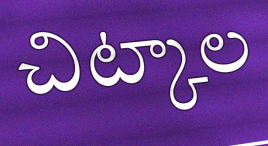
చిట్కాల